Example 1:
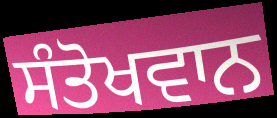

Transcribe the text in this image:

ਸੰਤੋਖਵਾਨ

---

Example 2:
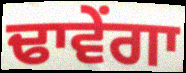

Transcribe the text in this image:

ਢਾਵੇਂਗਾ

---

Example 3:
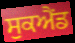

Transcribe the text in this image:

ਸੁਕਐਂਡ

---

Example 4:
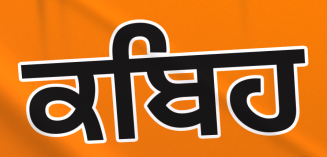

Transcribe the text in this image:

ਕਬਿਹ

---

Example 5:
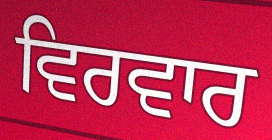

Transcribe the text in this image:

ਵਿਰਵਾਰ